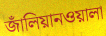
জাঁলিয়ানওয়ালা